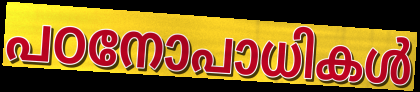
പഠനോപാധികൾ